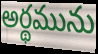
అర్థమును